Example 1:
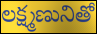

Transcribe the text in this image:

లక్ష్మణునితో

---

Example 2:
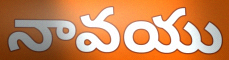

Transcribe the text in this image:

నావయు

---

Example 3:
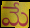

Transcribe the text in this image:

మే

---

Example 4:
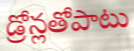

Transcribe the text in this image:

డ్రోన్లతోపాటు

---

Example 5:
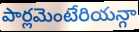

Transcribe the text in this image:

పార్లమెంటేరియన్గా